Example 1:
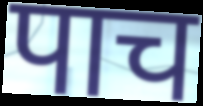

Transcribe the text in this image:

पाच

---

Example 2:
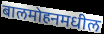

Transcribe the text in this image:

बालमोहनमधील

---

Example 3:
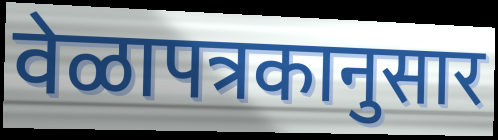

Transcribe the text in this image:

वेळापत्रकानुसार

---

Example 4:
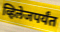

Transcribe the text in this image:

व्हिलेजपर्यंत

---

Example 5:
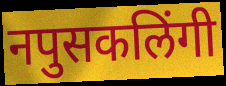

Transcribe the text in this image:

नपुसकलिंगी